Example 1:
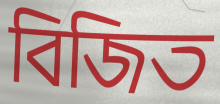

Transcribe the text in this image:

বিজিত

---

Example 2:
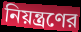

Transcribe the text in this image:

নিয়ন্ত্রণের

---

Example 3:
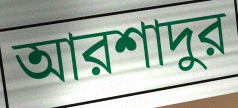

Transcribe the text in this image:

আরশাদুর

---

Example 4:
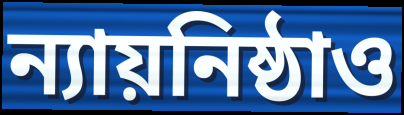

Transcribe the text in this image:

ন্যায়নিষ্ঠাও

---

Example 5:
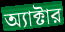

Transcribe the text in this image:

অ্যাক্টার